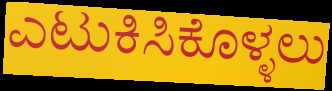
ಎಟುಕಿಸಿಕೊಳ್ಳಲು